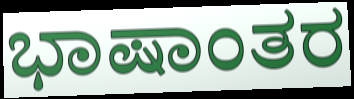
ಭಾಷಾಂತರ